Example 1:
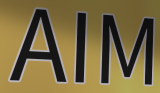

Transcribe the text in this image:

AIM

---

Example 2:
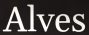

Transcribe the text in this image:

Alves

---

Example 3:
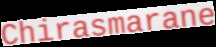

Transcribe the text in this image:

Chirasmarane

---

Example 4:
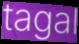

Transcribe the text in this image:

tagal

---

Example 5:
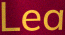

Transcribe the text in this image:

Lea